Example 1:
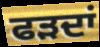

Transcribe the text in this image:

ਫੜਦਾਂ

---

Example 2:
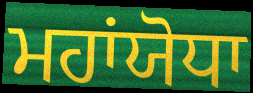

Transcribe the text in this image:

ਮਹਾਂਯੋਧਾ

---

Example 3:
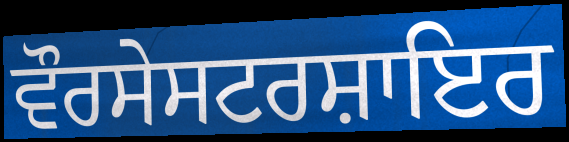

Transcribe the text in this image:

ਵੌਰਸੇਸਟਰਸ਼ਾਇਰ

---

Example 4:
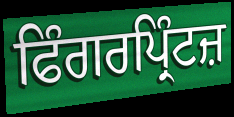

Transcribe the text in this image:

ਫਿੰਗਰਪ੍ਰਿੰਟਜ਼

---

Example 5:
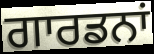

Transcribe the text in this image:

ਗਾਰਡਨਾਂ